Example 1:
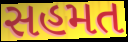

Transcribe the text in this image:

સહમત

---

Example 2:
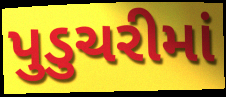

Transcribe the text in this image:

પુડુચરીમાં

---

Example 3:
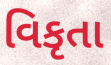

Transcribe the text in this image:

વિકૃતા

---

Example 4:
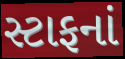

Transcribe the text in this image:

સ્ટાફનાં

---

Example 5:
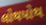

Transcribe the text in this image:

લોથપોથ